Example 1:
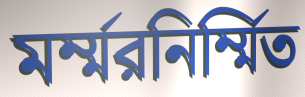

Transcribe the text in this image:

মর্ম্মরনির্ম্মিত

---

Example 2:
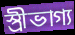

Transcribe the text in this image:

স্ত্রীভাগ্য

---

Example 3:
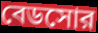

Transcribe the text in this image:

বেডসোর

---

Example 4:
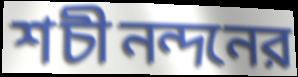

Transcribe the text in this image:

শচীনন্দনের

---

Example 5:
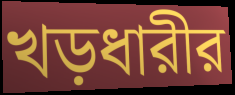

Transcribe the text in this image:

খড়ধারীর